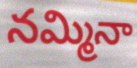
నమ్మినా